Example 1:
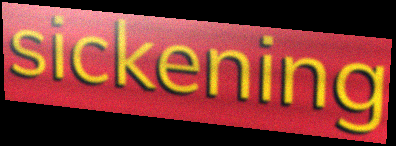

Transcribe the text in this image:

sickening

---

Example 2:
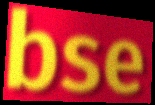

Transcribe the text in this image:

bse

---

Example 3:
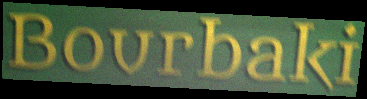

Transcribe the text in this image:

Bourbaki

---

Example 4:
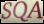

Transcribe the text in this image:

SQA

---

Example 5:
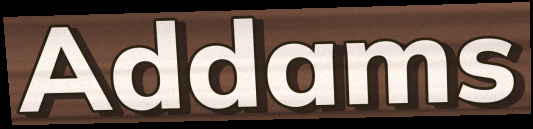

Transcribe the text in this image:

Addams